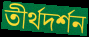
তীর্থদর্শন